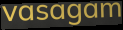
vasagam